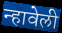
न्हावेली